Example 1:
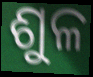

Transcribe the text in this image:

ଶୁଳ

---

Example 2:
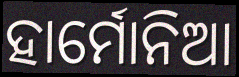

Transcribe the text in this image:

ହାର୍ମୋନିଆ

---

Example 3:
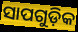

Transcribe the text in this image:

ସାପଗୁଡ଼ିକ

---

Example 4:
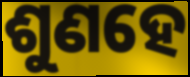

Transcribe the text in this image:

ଶୁଣହେ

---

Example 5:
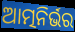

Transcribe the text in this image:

ଆତ୍ମନିର୍ଭର